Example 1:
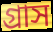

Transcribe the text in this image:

গ্ৰাস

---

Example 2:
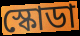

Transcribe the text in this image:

স্কোডা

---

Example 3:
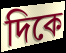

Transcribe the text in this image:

দিকে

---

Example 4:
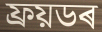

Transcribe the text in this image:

ফ্ৰয়ডৰ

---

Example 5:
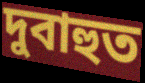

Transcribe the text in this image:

দুবাহুত